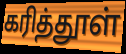
கரித்தூள்